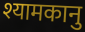
श्यामकानु